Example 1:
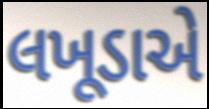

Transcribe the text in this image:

લખૂડાએ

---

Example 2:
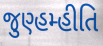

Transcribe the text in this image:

જુણ્હમ્હીતિ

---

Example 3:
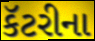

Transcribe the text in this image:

કૅટરીના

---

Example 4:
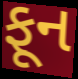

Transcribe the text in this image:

ફૂન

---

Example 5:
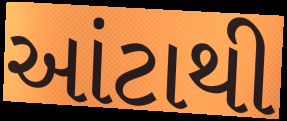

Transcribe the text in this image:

આંટાથી